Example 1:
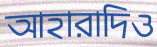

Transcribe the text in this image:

আহারাদিও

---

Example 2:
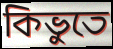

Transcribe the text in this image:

কিভুতে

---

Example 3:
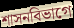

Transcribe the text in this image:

শাসনবিভাগে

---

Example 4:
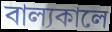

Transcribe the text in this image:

বাল্যকালে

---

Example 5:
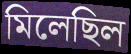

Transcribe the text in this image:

মিলেছিল